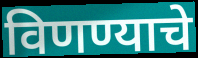
विणण्याचे